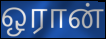
ஒரான்